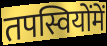
तपस्वियोंमें